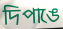
দিপাঙে